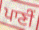
ਪਾਣੀਂ